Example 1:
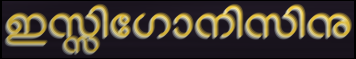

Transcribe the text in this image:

ഇസ്സിഗോനിസിനു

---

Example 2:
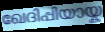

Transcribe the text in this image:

ഖേദിപ്പിയായ്കു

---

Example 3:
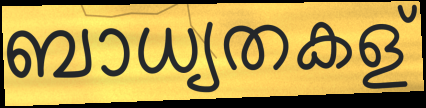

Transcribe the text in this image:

ബാധ്യതകള്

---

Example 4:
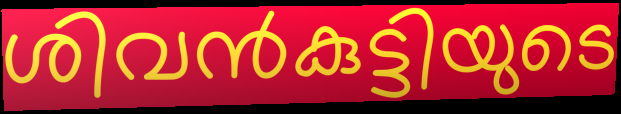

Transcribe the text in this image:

ശിവൻകുട്ടിയുടെ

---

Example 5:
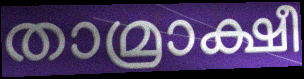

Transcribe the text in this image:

താമ്രാക്ഷീ